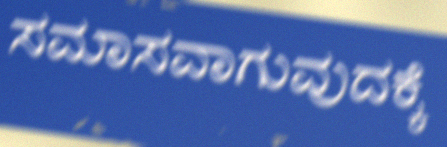
ಸಮಾಸವಾಗುವುದಕ್ಕೆ